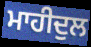
ਮਾਹੀਦੁਲ